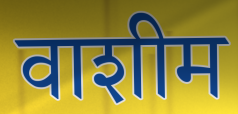
वाशीम